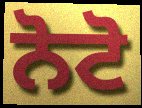
ਨੋਟੋ